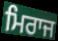
ਮਿਰਾਜ